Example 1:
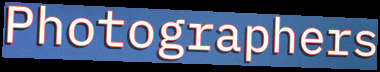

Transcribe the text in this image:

Photographers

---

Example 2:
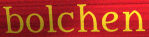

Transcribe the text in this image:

bolchen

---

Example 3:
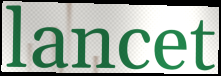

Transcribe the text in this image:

lancet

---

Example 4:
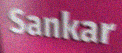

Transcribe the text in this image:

Sankar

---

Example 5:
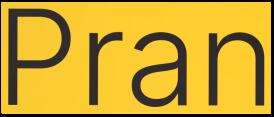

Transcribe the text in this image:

Pran